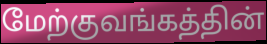
மேற்குவங்கத்தின்